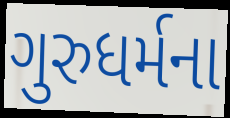
ગુરુધર્મના